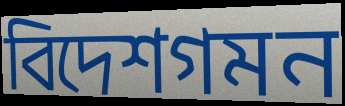
বিদেশগমন